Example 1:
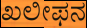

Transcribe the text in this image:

ಖಲೀಫನ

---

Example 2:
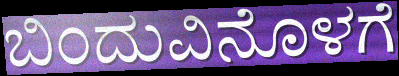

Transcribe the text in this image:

ಬಿಂದುವಿನೊಳಗೆ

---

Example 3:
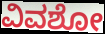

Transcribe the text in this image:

ವಿವಶೋ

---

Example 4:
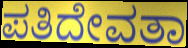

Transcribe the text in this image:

ಪತಿದೇವತಾ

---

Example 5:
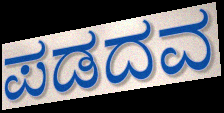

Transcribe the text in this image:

ಪಡದವ